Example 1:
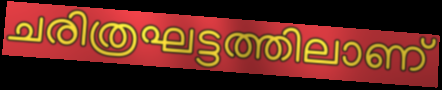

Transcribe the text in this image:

ചരിത്രഘട്ടത്തിലാണ്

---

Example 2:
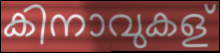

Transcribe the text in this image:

കിനാവുകള്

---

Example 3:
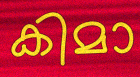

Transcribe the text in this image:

കിമാ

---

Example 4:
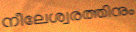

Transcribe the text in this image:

നീലേശ്വരത്തിനും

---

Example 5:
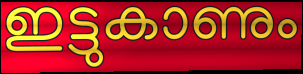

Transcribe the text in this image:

ഇട്ടുകാണും